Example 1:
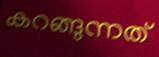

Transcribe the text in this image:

കറങ്ങുന്നത്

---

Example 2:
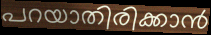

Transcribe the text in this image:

പറയാതിരിക്കാൻ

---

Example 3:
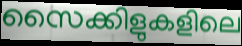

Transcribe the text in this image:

സൈക്കിളുകളിലെ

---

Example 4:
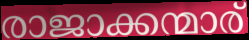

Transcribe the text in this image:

രാജാക്കന്മാര്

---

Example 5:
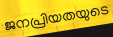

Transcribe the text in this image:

ജനപ്രിയതയുടെ